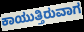
ಕಾಯುತ್ತಿರುವಾಗ